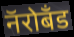
नॅरोबँड